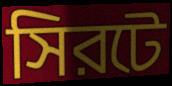
সিরটে